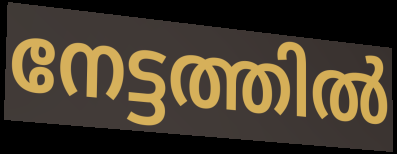
നേട്ടത്തിൽ